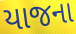
યાજના